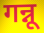
गन्नू